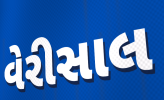
વેરીસાલ